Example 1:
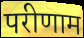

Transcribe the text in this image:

परीणाम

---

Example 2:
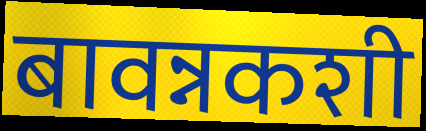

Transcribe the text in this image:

बावन्नकशी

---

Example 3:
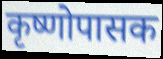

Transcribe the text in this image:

कृष्णोपासक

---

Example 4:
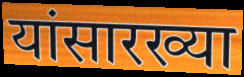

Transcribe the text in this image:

यांसारख्‍या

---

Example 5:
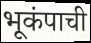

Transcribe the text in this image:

भूकंपाची